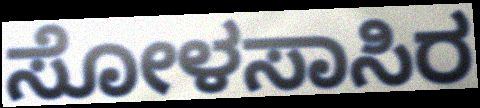
ಸೋಳಸಾಸಿರ